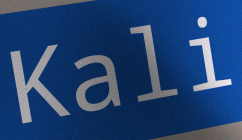
Kali